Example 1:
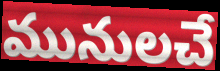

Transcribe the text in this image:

మునులచే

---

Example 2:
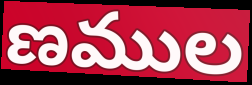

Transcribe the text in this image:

ణముల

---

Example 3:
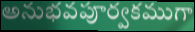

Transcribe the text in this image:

అనుభవపూర్వకముగా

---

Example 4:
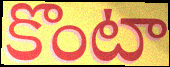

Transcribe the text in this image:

కొంటా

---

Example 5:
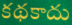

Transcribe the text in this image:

కథకాదు